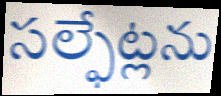
సల్ఫేట్లను